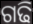
ଗଢି